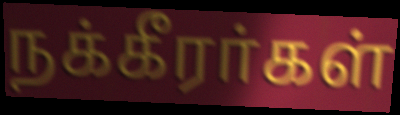
நக்கீரர்கள்